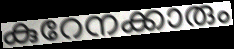
കുറേനക്കാരും